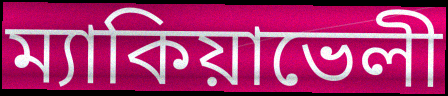
ম্যাকিয়াভেলী